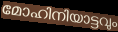
മോഹിനിയാട്ടവും